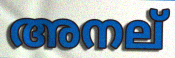
അനല്